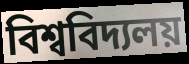
বিশ্ববিদ্যলয়